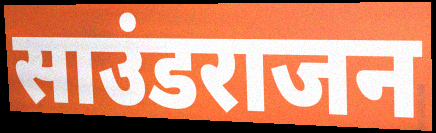
साउंडराजन